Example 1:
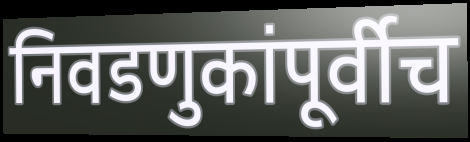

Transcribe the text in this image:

निवडणुकांपूर्वीच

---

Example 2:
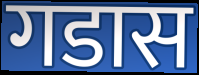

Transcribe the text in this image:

गडास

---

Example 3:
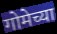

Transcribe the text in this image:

गोमेच्या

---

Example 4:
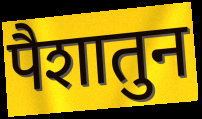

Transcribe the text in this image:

पैशातुन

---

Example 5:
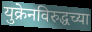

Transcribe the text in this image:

युक्रेनविरुद्धच्या